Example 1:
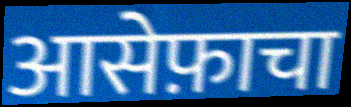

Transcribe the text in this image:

आसेफ़ाचा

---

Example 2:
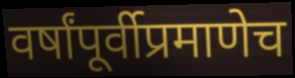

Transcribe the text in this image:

वर्षांपूर्वीप्रमाणेच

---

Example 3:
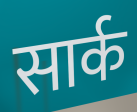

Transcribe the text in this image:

सार्क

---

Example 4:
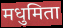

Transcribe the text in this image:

मधुमिता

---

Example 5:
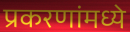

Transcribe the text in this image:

प्रकरणांमध्ये